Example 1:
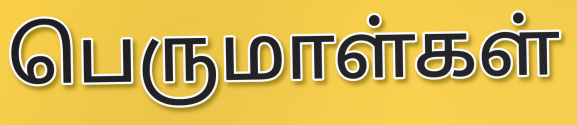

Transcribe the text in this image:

பெருமாள்கள்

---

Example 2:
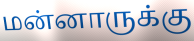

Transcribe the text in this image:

மன்னாருக்கு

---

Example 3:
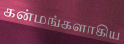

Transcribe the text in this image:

கன்மங்களாகிய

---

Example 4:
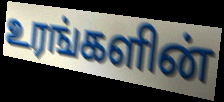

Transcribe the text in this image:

உரங்களின்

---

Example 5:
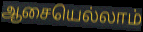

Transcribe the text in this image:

ஆசையெல்லாம்